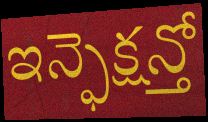
ఇన్ఫెక్షన్తో